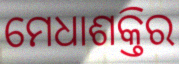
ମେଧାଶକ୍ତିର